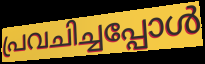
പ്രവചിച്ചപ്പോൾ